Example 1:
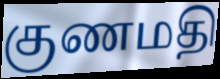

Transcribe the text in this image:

குணமதி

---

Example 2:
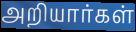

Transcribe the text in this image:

அறியார்கள்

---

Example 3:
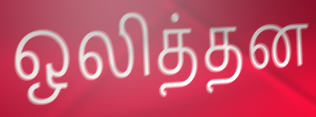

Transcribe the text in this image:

ஒலித்தன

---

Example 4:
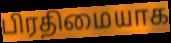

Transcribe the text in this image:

பிரதிமையாக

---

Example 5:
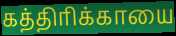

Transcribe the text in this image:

கத்திரிக்காயை